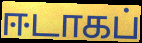
ஈடாகப்